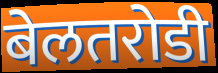
बेलतरोडी